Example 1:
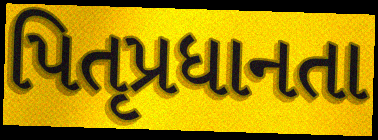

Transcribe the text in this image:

પિતૃપ્રધાનતા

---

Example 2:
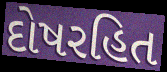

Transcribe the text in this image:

દોષરહિત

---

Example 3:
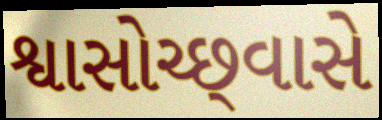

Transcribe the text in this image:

શ્વાસોચ્છ્‍વાસે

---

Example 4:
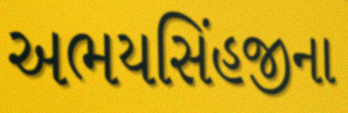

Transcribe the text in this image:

અભયસિંહજીના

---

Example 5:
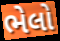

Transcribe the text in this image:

ભેલો